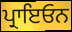
ਪ੍ਰਾਇਓਨ